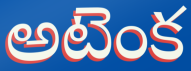
అటెంక